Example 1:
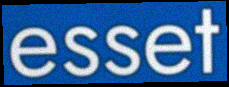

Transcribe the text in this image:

esset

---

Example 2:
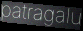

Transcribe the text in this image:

patragalu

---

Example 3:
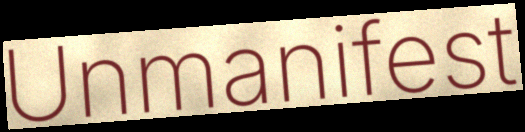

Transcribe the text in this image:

Unmanifest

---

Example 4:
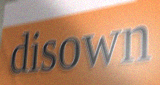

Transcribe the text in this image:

disown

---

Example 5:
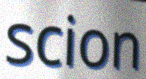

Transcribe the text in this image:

scion